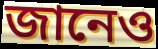
জানেও